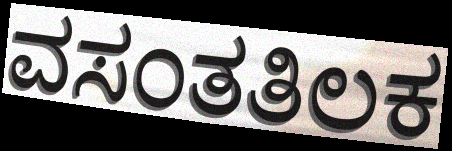
ವಸಂತತಿಲಕ